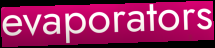
evaporators